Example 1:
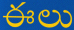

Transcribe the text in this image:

ఈలు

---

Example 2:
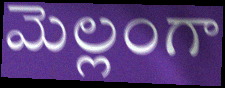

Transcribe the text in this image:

మెల్లంగా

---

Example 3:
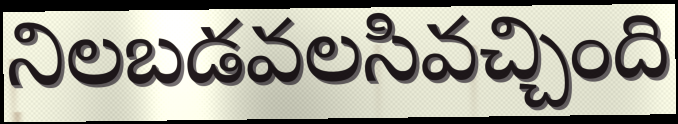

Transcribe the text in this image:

నిలబడవలసివచ్చింది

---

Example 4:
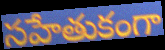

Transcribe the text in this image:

సహేతుకంగా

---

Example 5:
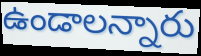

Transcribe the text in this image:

ఉండాలన్నారు